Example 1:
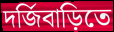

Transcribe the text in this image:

দর্জিবাড়িতে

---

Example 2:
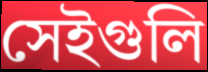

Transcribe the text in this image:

সেইগুলি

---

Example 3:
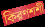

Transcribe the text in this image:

কিরণশশী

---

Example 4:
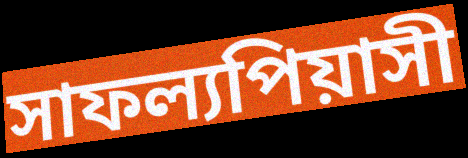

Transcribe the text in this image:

সাফল্যপিয়াসী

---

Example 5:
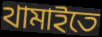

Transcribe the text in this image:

থামাইতে